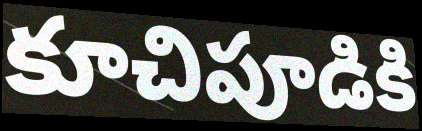
కూచిపూడికి